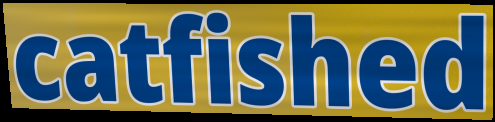
catfished